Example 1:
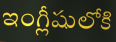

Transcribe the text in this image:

ఇంగ్లీషులోకి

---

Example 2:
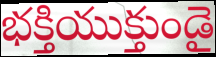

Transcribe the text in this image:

భక్తియుక్తుండై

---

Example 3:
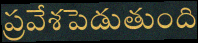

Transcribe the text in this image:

ప్రవేశపెడుతుంది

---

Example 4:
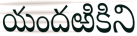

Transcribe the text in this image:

యందఱికిని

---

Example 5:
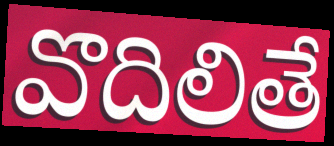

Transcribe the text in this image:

వొదిలితే